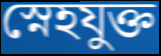
স্নেহযুক্ত